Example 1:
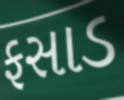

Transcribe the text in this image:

ફસાડ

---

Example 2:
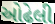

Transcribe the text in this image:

ઓઢેલી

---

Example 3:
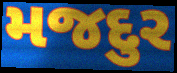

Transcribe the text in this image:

મજદુર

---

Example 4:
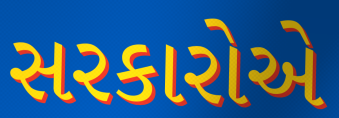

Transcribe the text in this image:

સરકારોએ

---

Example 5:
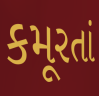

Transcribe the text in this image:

કમૂરતાં